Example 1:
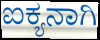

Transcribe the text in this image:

ಐಕ್ಯನಾಗಿ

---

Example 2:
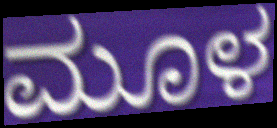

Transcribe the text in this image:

ಮೂಳ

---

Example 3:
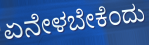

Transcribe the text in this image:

ಏನೇಳಬೇಕೆಂದು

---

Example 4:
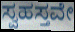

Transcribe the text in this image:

ಸ್ವಹಸ್ತವೇ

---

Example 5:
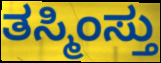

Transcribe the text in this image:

ತಸ್ಮಿಂಸ್ತು